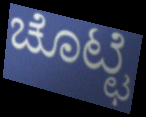
ಚೊಟ್ಟೆ